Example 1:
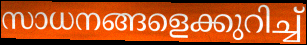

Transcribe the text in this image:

സാധനങ്ങളെക്കുറിച്ച്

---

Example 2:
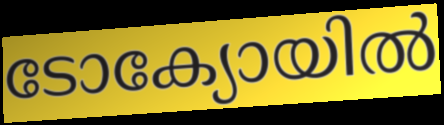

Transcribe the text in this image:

ടോക്യോയിൽ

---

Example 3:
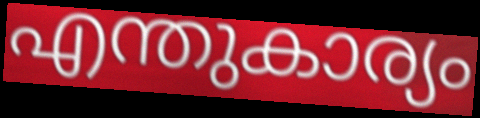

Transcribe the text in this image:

എന്തുകാര്യം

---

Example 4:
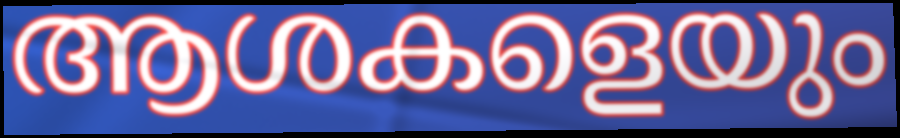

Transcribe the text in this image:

ആശകളെയും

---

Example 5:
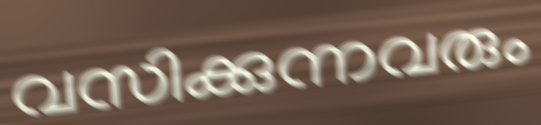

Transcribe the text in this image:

വസിക്കുന്നവരും